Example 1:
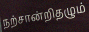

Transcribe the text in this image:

நற்சான்றிதழும்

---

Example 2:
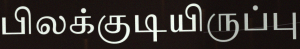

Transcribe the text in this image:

பிலக்குடியிருப்பு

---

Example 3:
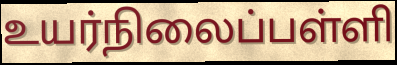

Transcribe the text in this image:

உயர்நிலைப்பள்ளி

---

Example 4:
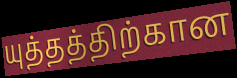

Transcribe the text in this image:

யுத்தத்திற்கான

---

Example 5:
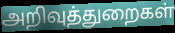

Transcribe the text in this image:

அறிவுத்துறைகள்